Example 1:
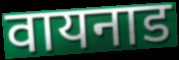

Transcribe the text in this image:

वायनाड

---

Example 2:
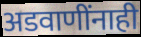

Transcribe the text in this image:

अडवाणींनाही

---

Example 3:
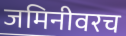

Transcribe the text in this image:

जमिनीवरच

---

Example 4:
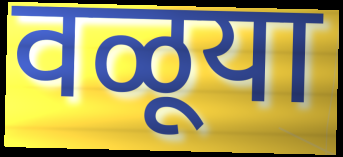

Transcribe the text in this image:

वळूया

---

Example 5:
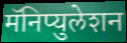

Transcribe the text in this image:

मॅनिप्युलेशन